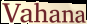
Vahana